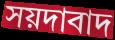
সয়দাবাদ